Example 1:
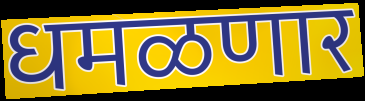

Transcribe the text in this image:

धमळणार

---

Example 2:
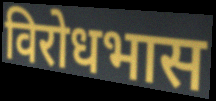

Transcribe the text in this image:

विरोधभास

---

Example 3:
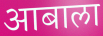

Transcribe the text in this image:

आबाला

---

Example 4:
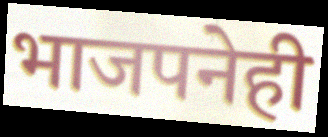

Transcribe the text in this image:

भाजपनेही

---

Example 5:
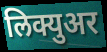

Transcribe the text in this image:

लिक्युअर